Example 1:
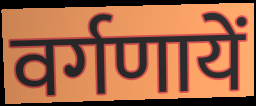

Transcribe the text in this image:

वर्गणायें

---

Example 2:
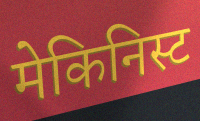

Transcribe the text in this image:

मेकिनिस्ट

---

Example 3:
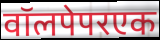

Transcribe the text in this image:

वॉलपेपरएक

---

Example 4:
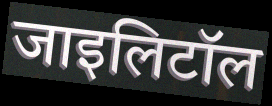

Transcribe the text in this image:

जाइलिटॉल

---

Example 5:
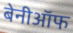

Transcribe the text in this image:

बेनीऑफ